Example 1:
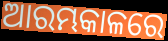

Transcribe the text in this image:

ଆରମ୍ଭକାଳରେ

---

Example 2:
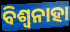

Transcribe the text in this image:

ବିଶ୍ଵନାହା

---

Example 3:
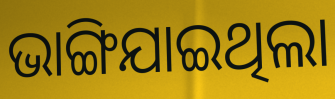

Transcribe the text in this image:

ଭାଙ୍ଗିଯାଇଥିଲା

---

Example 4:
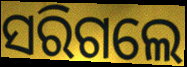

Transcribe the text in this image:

ସରିଗଲେ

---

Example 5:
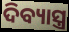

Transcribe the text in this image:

ଦିବ୍ୟାସ୍ତ୍ର